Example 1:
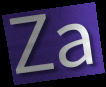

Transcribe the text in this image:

Za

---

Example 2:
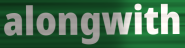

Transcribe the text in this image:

alongwith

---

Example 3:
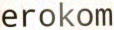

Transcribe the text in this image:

erokom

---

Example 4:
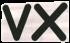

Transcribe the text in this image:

vx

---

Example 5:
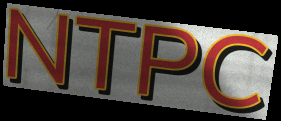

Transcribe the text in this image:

NTPC